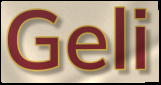
Geli